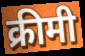
क्रीमी